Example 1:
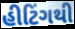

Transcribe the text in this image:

હીટિંગથી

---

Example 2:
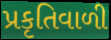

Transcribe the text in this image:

પ્રકૃતિવાળી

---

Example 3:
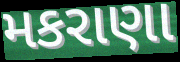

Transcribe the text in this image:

મકરાણા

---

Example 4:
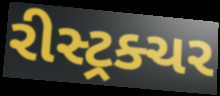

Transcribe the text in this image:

રીસ્ટ્રક્ચર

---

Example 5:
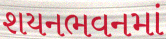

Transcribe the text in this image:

શયનભવનમાં